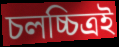
চলচ্চিত্ৰই